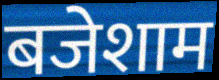
बजेशाम